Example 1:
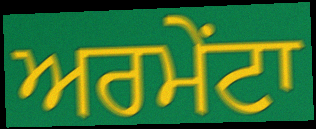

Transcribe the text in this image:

ਅਰਮੇਂਟਾ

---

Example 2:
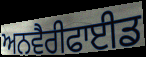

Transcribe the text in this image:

ਅਨਵੈਰੀਫਾਈਡ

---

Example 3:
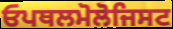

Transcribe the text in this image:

ਓਪਥਲਮੋਲੋਜਿਸਟ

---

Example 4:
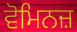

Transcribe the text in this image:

ਵੋਮਿਨਜ਼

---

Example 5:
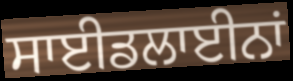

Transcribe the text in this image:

ਸਾਈਡਲਾਈਨਾਂ